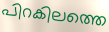
പിറകിലത്തെ